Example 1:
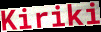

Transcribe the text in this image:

Kiriki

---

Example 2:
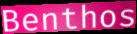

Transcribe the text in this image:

Benthos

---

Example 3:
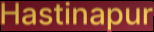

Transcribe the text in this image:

Hastinapur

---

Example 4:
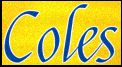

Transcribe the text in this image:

Coles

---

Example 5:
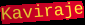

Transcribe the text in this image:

Kaviraje